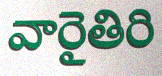
వారైతిరి